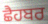
ਛੈਹਬਰ